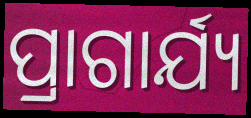
ପ୍ରାଗାର୍ଯ୍ୟ